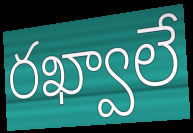
రఖ్వాలే